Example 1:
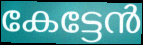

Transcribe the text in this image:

കേട്ടേൻ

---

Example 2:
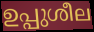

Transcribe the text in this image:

ഉപ്പുശീല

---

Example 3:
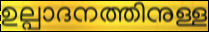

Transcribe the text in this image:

ഉല്പാദനത്തിനുള്ള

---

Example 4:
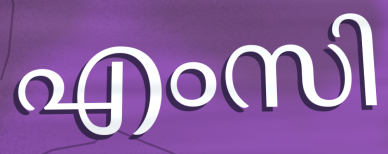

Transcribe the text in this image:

എംസി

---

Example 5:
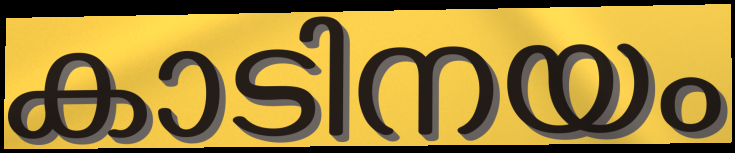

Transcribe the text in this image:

കാടിനയം